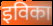
इविका